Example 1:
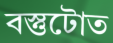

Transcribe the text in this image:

বস্তুটোত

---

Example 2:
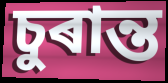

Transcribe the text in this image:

চুৰান্ত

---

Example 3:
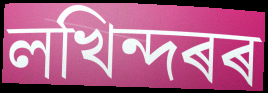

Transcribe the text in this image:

লখিন্দৰৰ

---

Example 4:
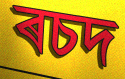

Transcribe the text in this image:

ৰচদ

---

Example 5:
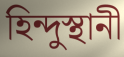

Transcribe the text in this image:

হিন্দুস্থানী